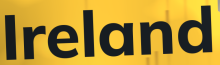
Ireland